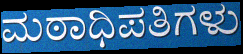
ಮಠಾಧಿಪತಿಗಳು